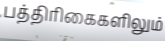
பத்திரிகைகளிலும்